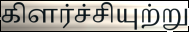
கிளர்ச்சியுற்று